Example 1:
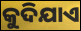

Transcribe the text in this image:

କୁଦିଯାଏ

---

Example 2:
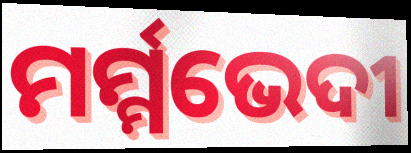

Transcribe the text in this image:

ମର୍ମ୍ମଭେଦୀ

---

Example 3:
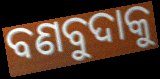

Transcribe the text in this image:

ବଣବୁଦାକୁ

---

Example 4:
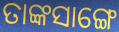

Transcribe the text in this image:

ତାଙ୍କସାଙ୍ଗେ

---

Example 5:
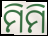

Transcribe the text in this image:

ମିମି